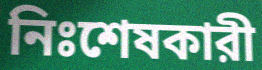
নিঃশেষকারী